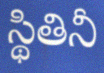
స్థితినీ